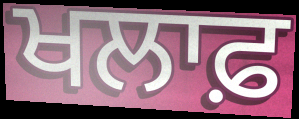
ਖਲਾਫ਼